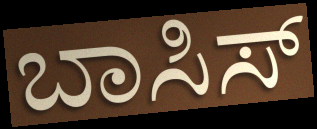
ಬಾಸಿಸ್